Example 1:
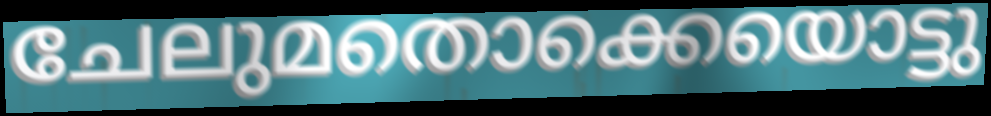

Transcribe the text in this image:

ചേലുമതൊക്കെയൊട്ടു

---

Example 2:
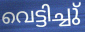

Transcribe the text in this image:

വെട്ടിച്ചു്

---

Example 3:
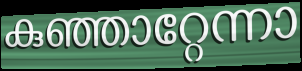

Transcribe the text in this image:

കുഞ്ഞാറ്റേന്നാ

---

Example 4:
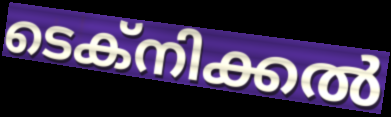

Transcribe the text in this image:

ടെക്നിക്കൽ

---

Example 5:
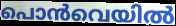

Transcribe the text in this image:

പൊൻവെയിൽ